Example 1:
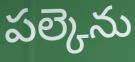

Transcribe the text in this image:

పల్కెను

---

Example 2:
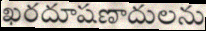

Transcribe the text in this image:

ఖరదూషణాదులను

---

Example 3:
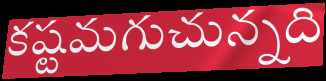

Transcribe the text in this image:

కష్టమగుచున్నది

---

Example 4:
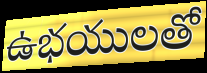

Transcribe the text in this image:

ఉభయులతో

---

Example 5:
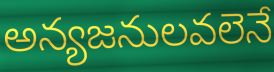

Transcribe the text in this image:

అన్యజనులవలెనే